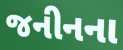
જનીનના